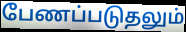
பேணப்படுதலும்